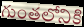
గుంతలోనికి